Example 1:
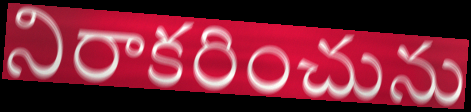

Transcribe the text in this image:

నిరాకరించును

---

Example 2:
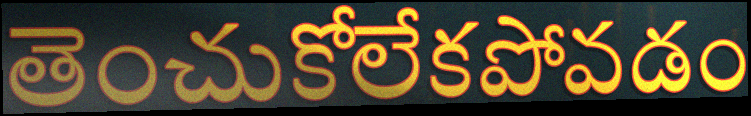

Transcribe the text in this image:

తెంచుకోలేకపోవడం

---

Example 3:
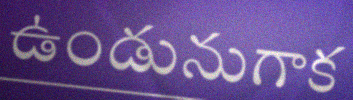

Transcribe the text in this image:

ఉండునుగాక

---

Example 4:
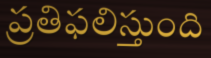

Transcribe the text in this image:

ప్రతిఫలిస్తుంది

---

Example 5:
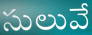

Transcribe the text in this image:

సులువే